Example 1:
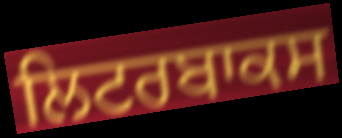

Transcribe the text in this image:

ਲਿਟਰਬਾਕਸ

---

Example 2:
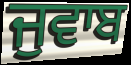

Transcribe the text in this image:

ਜੁਵਾਬ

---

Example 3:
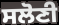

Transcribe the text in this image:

ਸਲੋਣੀ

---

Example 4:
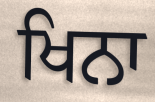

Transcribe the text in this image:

ਖਿਨਾ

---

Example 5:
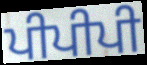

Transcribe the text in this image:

ਪੀਪੀਪੀ